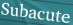
Subacute